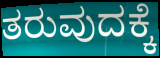
ತರುವುದಕ್ಕೆ